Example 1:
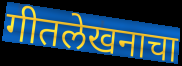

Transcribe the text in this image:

गीतलेखनाचा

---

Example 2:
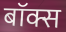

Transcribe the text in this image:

बॉक्स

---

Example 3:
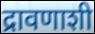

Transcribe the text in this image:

द्रावणाशी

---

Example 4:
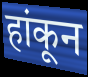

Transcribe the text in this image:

हांकून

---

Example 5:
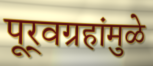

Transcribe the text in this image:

पूर्वग्रहांमुळे